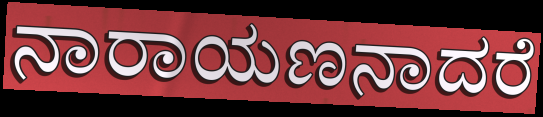
ನಾರಾಯಣನಾದರೆ